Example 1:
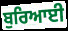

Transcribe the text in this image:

ਬੁਰਿਆਈ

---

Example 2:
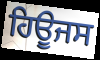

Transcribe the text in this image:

ਹਿਊਜਸ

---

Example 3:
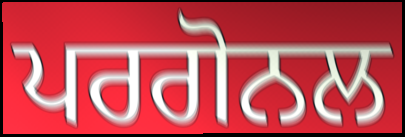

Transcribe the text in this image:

ਪਰਗੋਨਲ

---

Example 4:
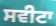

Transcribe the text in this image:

ਸਵੀਟਾ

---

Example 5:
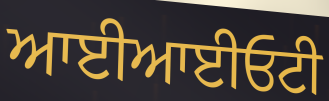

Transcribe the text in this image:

ਆਈਆਈਓਟੀ